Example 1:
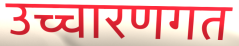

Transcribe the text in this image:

उच्चारणगत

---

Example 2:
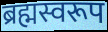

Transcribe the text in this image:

ब्रह्मस्वरूप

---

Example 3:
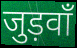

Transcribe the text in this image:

जुड़वाँ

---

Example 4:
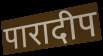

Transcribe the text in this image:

पारादीप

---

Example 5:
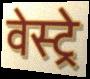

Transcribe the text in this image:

वेस्ट्रे